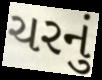
ચરનું